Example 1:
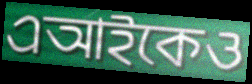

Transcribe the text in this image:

এআইকেও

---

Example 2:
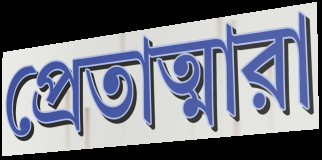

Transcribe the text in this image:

প্রেতাত্মারা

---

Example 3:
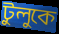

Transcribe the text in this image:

টুলুকে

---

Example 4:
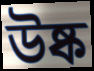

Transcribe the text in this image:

উষ্ক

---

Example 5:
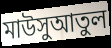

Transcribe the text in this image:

মাউসুআতুল